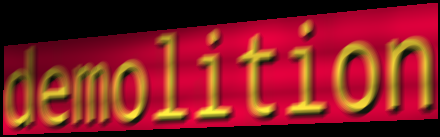
demolition